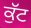
ਕੁੱਟ